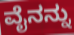
ವೈನನ್ನು